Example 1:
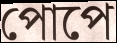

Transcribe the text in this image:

পোপে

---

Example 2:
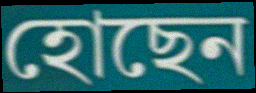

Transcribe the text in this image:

হোছেন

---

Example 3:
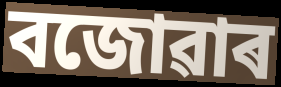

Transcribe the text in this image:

বজোৱাৰ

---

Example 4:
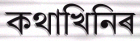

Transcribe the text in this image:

কথাখিনিৰ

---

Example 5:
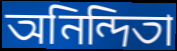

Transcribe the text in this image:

অনিন্দিতা